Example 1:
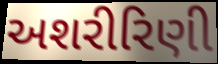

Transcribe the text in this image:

અશરીરિણી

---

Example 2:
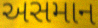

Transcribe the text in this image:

અસમાન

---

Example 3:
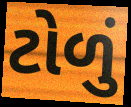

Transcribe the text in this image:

ટોળું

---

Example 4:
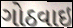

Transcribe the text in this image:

ગોઠવાઇ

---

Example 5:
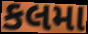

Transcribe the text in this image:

કલમા